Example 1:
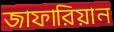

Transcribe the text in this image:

জাফারিয়ান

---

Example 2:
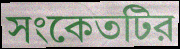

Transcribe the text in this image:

সংকেতটির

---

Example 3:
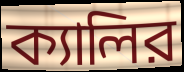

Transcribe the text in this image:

ক্যালির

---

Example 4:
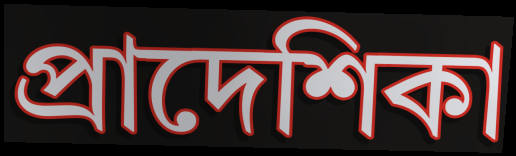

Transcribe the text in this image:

প্রাদেশিকা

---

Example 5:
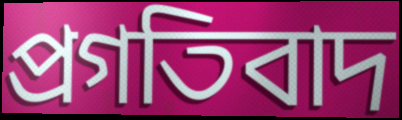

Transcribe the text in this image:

প্রগতিবাদ